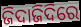
ଜିଦାଜିଦିରେ